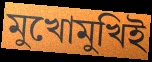
মুখোমুখিই